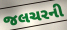
જલચરની